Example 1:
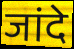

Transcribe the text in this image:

जांदे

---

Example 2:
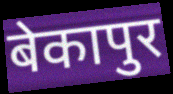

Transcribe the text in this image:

बेकापुर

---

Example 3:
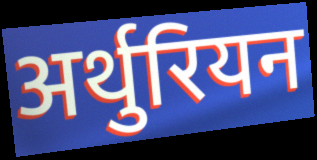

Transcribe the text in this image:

अर्थुरियन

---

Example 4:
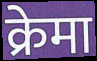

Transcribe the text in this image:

क्रेमा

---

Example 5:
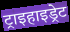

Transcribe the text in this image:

ट्राइहाइड्रेट